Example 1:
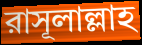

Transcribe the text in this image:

রাসূলাল্লাহ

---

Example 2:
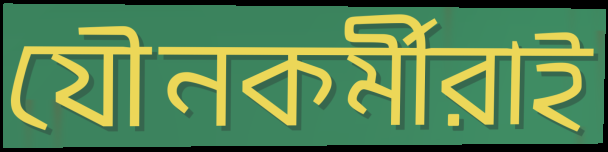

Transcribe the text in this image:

যৌনকর্মীরাই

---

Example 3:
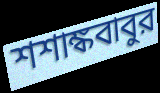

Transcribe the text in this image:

শশাঙ্কবাবুর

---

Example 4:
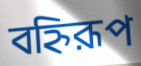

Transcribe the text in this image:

বহ্নিরূপ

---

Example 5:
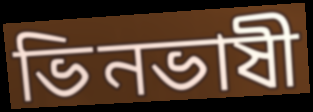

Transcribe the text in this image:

ভিনভাষী